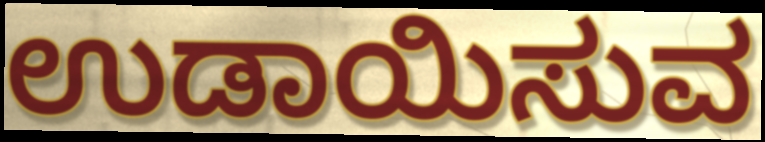
ಉಡಾಯಿಸುವ